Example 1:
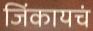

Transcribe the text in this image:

जिंकायचं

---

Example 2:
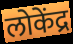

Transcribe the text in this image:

लोकेंद्र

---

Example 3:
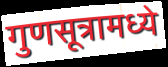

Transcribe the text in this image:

गुणसूत्रामध्ये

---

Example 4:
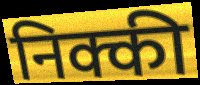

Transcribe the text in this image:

निक्की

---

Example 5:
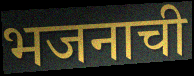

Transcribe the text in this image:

भजनाची